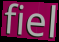
fiel